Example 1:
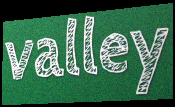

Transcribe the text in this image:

valley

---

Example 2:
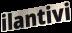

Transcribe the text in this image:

ilantivi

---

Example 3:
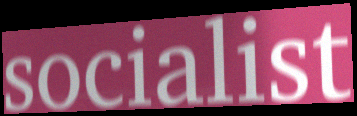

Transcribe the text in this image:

socialist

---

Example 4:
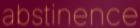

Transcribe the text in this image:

abstinence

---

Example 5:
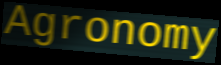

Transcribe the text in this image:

Agronomy